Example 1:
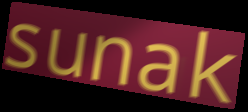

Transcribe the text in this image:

sunak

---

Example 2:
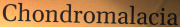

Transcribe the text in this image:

Chondromalacia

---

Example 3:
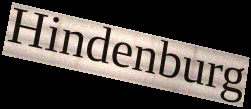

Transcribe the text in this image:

Hindenburg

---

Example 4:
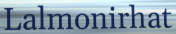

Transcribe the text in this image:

Lalmonirhat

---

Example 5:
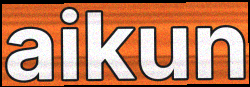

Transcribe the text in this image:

aikun